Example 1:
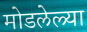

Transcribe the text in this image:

मोडलेल्या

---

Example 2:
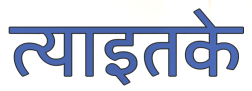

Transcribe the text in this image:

त्याइतके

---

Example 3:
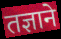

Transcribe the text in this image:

तज्ञाने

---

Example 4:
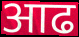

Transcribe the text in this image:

आढ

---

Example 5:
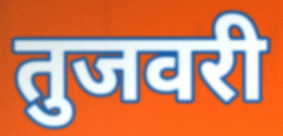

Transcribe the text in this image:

तुजवरी